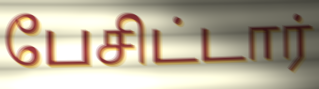
பேசிட்டார்